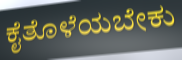
ಕೈತೊಳೆಯಬೇಕು